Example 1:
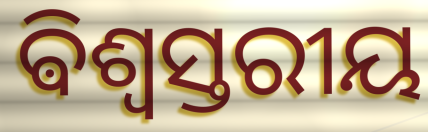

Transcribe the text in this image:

ଵିଶ୍ୱସ୍ତରୀୟ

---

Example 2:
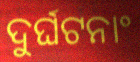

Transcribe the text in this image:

ଦୁର୍ଘଟନାଂ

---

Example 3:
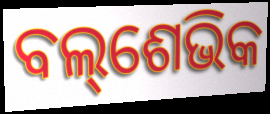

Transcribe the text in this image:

ବଲ୍‌ଶେଭିକ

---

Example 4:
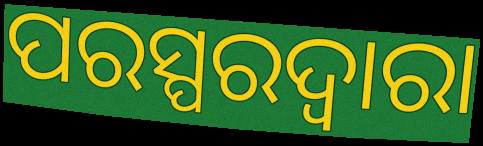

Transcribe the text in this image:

ପରସ୍ପରଦ୍ୱାରା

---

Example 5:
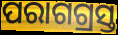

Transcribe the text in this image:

ପରାଗଗ୍ରସ୍ତ